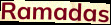
Ramadas